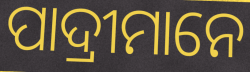
ପାଦ୍ରୀମାନେ